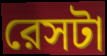
রেসটা